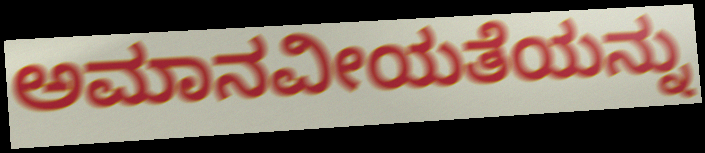
ಅಮಾನವೀಯತೆಯನ್ನು